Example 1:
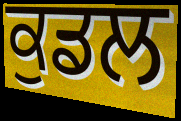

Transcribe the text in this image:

ਕੁਡਲ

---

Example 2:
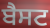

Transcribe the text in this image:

ਬੈਸਟ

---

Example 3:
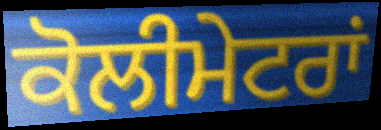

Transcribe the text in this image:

ਕੋਲੀਮੇਟਰਾਂ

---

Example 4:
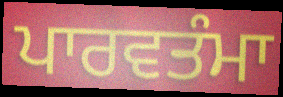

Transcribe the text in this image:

ਪਾਰਵਤੰਮਾ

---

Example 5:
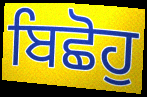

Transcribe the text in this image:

ਬਿਛੋਹੁ